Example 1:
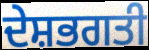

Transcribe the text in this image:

ਦੇਸ਼ਭਗਤੀ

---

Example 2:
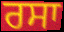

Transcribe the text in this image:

ਰਸਾ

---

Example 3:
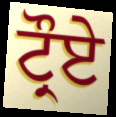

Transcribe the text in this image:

ਟ੍ਰੌਏ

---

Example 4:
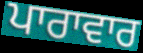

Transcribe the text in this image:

ਪਾਰਾਵਾਰ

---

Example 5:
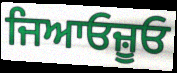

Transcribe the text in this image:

ਜਿਆਓਜ਼ੂਓ